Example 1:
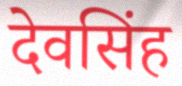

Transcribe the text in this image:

देवसिंह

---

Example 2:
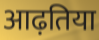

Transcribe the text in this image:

आढ़तिया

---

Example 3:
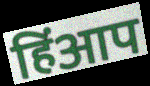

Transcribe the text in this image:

हिंआप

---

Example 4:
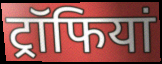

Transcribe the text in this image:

ट्रॉफियां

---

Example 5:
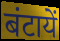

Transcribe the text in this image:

बंटायें